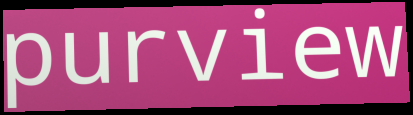
purview